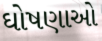
ઘોષણાઓ